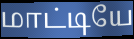
மாட்டியே